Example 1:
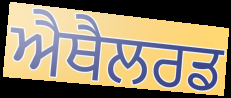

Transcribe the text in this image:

ਐਥੈਲਰਡ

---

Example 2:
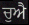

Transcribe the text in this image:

ਚੁਐ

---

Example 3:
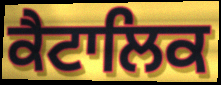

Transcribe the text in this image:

ਕੈਟਾਲਿਕ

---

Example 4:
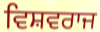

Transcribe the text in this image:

ਵਿਸ਼ਵਰਾਜ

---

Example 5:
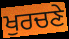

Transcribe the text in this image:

ਖੁਰਚਣੇ